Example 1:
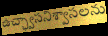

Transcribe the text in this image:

ఉచ్ఛ్వాసనిశ్వాసలను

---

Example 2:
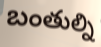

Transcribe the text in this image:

బంతుల్ని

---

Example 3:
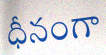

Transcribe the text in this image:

ధీనంగా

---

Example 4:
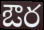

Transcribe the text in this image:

ఔర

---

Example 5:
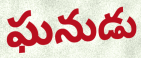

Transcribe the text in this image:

ఘనుడు